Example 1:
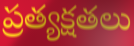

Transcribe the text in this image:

ప్రత్యక్షతలు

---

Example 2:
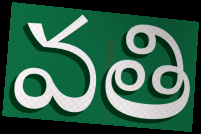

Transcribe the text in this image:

వతి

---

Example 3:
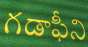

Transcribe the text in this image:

గడాఫీని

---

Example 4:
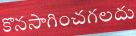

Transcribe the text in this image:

కొనసాగించగలదు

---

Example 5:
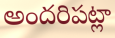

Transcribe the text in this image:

అందరిపట్లా